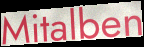
Mitalben